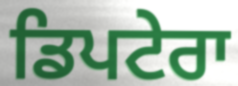
ਡਿਪਟੇਰਾ